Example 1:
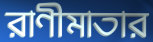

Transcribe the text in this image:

রাণীমাতার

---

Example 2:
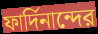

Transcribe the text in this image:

ফার্দিনান্দের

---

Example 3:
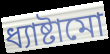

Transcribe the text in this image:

ধ্যাষ্টামো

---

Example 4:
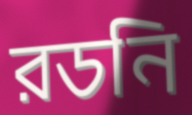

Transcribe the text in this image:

রডনি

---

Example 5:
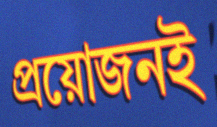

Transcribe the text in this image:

প্রয়োজনই